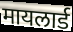
मायलार्ड